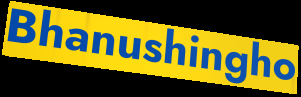
Bhanushingho